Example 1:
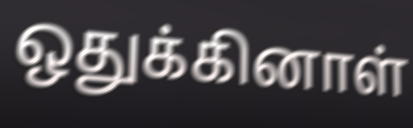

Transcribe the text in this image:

ஒதுக்கினாள்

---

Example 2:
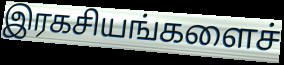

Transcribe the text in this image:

இரகசியங்களைச்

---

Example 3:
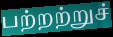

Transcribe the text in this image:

பற்றற்றுச்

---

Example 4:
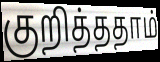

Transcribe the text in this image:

குறித்ததாம்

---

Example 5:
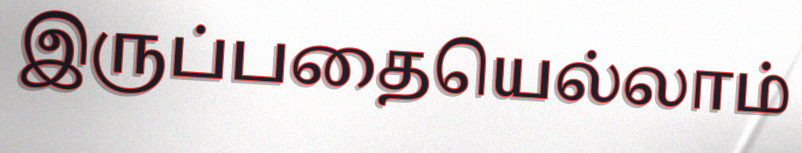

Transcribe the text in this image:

இருப்பதையெல்லாம்